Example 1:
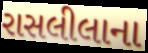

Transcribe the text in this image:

રાસલીલાના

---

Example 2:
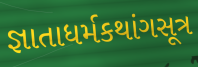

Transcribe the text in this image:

જ્ઞાતાધર્મકથાંગસૂત્ર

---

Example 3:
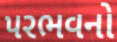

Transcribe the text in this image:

પરભવનો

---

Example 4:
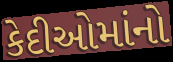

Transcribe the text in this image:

કેદીઓમાંનો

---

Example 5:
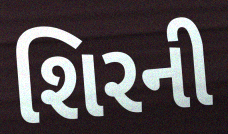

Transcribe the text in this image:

શિરની